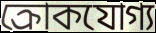
ক্রোকযোগ্য